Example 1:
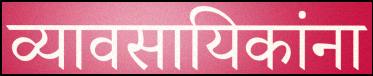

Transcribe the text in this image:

व्यावसायिकांना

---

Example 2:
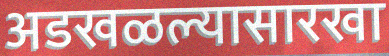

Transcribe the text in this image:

अडखळल्यासारखा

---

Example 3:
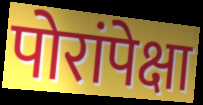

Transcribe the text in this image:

पोरांपेक्षा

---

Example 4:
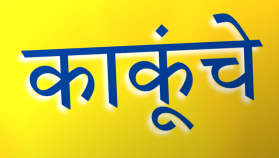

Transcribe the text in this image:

काकूंचे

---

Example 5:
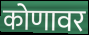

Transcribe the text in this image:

कोणावर